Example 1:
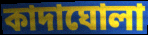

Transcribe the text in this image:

কাদাঘোলা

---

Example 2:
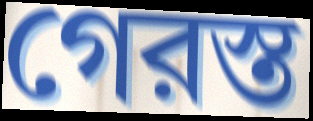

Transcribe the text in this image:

গেরস্ত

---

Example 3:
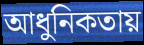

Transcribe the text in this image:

আধুনিকতায়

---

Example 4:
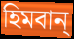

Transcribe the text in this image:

হিমবান্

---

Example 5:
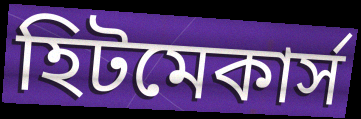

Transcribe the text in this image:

হিটমেকার্স